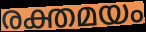
രക്തമയം